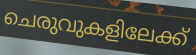
ചെരുവുകളിലേക്ക്